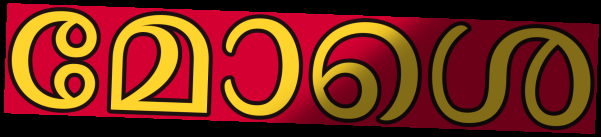
മോശെ